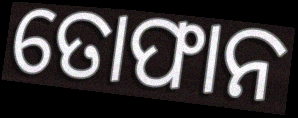
ତୋଫାନ